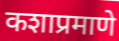
कशाप्रमाणे